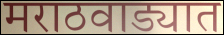
मराठवाड्यात